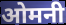
ओमनी